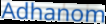
Adhanom